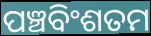
ପଞ୍ଚବିଂଶତମ